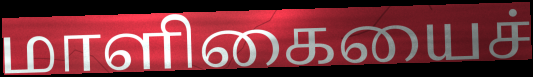
மாளிகையைச்